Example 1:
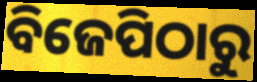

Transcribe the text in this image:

ବିଜେପିଠାରୁ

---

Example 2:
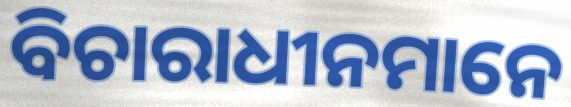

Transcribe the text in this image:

ବିଚାରାଧୀନମାନେ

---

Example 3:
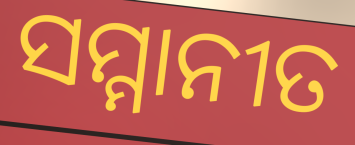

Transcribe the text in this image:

ସମ୍ମାନୀତ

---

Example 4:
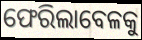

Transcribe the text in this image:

ଫେରିଲାବେଳକୁ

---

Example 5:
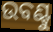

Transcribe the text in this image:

ଉବଣ୍ଟୁ